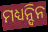
ମଧ୍ୟନ୍ଦିନ